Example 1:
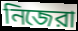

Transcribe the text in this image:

নিজেরা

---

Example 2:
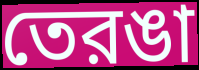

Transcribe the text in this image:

তেরঙা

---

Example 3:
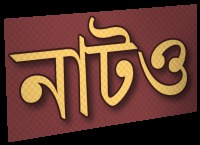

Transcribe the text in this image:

নাটও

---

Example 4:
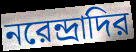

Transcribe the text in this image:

নরেন্দ্রাদির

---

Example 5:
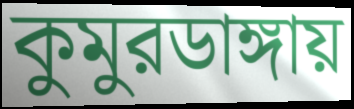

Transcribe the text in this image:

কুমুরডাঙ্গায়